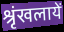
श्रृंखलायें